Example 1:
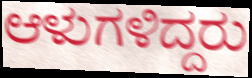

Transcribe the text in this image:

ಆಳುಗಳಿದ್ದರು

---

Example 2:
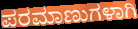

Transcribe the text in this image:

ಪರಮಾಣುಗಳಾಗಿ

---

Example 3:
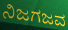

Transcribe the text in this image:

ನಿಜಗಜವ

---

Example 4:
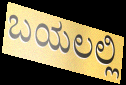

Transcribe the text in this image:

ಬಯಲಲ್ಲಿ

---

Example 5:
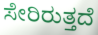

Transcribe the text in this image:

ಸೇರಿರುತ್ತದೆ